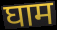
घाम